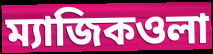
ম্যাজিকওলা